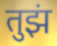
तुझं